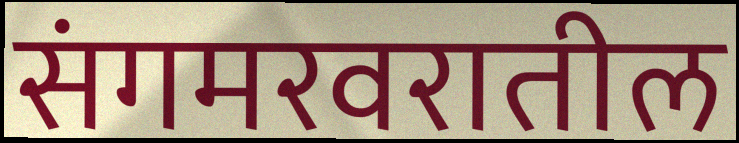
संगमरवरातील